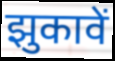
झुकावें